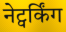
नेट्वर्किंग